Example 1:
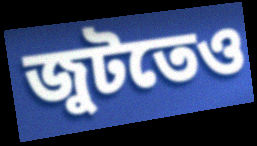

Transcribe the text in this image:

জুটতেও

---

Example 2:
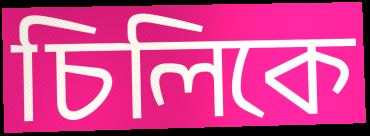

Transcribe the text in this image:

চিলিকে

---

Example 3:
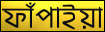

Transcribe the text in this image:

ফাঁপাইয়া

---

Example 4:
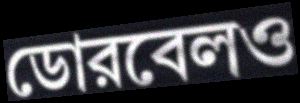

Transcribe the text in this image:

ডোরবেলও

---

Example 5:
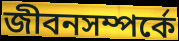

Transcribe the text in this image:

জীবনসম্পর্কে